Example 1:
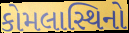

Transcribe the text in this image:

કોમલાસ્થિનો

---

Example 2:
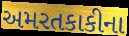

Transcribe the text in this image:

અમરતકાકીના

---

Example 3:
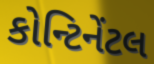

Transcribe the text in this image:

કોન્ટિનેંટલ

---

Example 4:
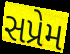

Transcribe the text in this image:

સપ્રેમ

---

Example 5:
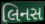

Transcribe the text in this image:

લિનસ